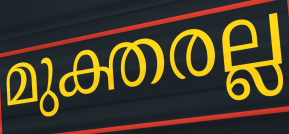
മുക്തരല്ല